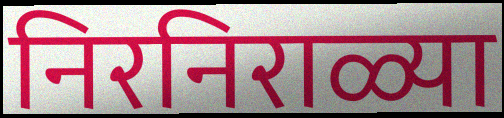
निरनिराळ्या